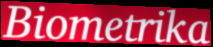
Biometrika